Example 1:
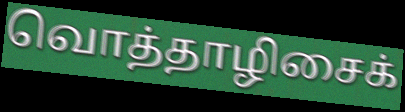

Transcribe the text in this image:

வொத்தாழிசைக்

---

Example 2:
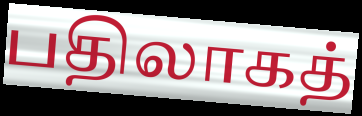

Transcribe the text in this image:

பதிலாகத்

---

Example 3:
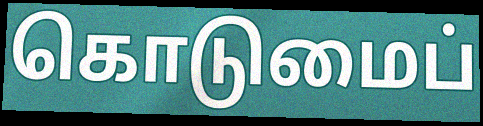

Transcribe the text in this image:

கொடுமைப்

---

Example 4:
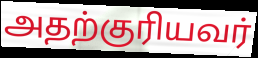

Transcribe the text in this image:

அதற்குரியவர்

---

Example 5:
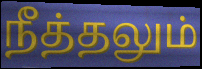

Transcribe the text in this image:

நீத்தலும்